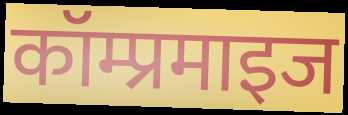
कॉम्प्रमाइज